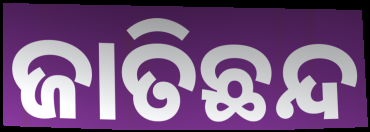
ଜାତିଛନ୍ଦ